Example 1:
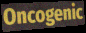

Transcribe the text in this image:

Oncogenic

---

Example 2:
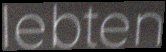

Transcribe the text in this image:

lebten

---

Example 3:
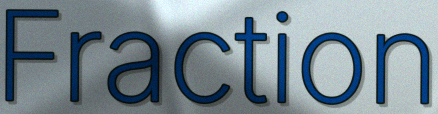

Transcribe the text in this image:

Fraction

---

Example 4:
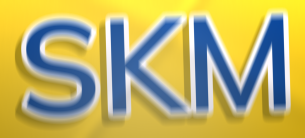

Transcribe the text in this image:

SKM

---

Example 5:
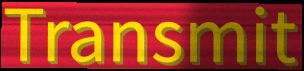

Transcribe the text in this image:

Transmit